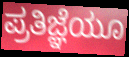
ಪ್ರತಿಜ್ಞೆಯೂ